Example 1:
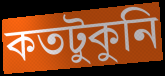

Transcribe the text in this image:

কতটুকুনি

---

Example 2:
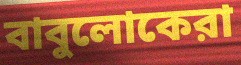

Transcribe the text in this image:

বাবুলোকেরা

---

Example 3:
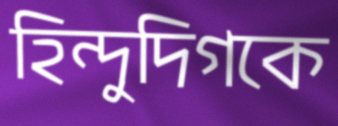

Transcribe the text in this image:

হিন্দুদিগকে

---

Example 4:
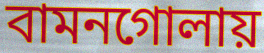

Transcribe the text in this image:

বামনগোলায়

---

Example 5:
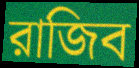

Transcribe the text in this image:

রাজিব